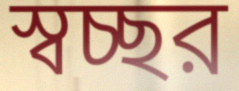
স্বচ্ছর